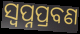
ସ୍ଵପ୍ନପ୍ରବଣ